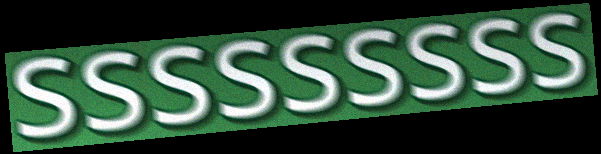
sssssssss